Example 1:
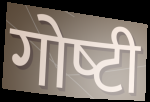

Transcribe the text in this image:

गोष्‍टी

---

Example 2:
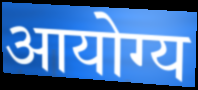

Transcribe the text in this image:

आयोग्य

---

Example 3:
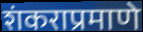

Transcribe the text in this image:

शंकराप्रमाणे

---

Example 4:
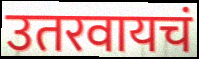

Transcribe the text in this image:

उतरवायचं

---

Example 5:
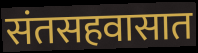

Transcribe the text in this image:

संतसहवासात